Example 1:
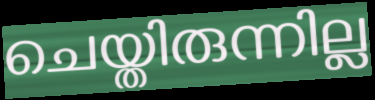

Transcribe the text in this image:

ചെയ്തിരുന്നില്ല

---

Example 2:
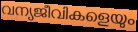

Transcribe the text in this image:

വന്യജീവികളെയും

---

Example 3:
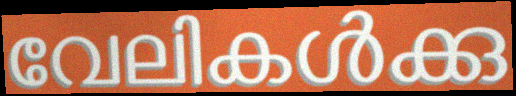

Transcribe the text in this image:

വേലികൾക്കു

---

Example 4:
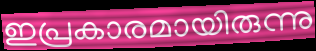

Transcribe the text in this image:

ഇപ്രകാരമായിരുന്നു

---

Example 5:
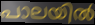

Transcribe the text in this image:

പാലയിൽ